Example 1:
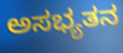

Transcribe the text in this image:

ಅಸಭ್ಯತನ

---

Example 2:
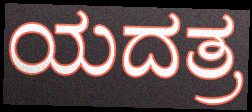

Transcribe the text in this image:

ಯದತ್ರ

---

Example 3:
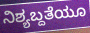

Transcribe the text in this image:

ನಿಶ್ಯಬ್ದತೆಯೂ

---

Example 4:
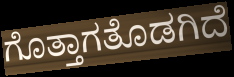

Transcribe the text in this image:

ಗೊತ್ತಾಗತೊಡಗಿದೆ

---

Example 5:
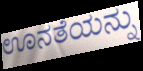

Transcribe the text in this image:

ಊನತೆಯನ್ನು